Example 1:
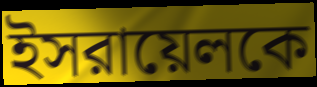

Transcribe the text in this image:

ইসরায়েলকে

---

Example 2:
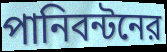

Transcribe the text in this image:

পানিবন্টনের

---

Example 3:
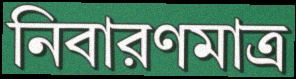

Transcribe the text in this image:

নিবারণমাত্র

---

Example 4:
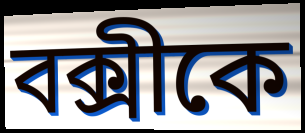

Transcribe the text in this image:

বক্সীকে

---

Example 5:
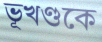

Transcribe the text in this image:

ভূখণ্ডকে